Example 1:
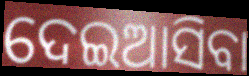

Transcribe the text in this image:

ଦେଇଆସିବା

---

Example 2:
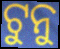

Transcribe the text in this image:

ଟୁନୁ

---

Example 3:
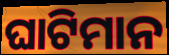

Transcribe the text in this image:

ଘାଟିମାନ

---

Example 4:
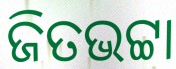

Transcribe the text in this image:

ଜିତଭଟ୍ଟା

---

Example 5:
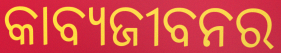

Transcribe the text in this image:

କାବ୍ୟଜୀବନର